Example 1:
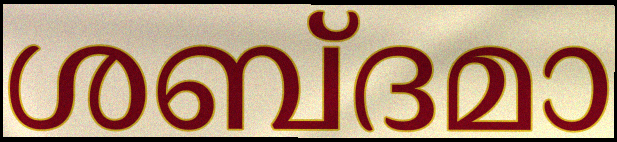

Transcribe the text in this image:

ശബ്ദമാ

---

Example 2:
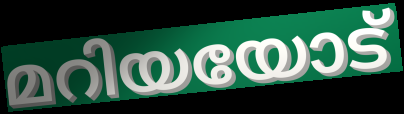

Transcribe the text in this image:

മറിയയോട്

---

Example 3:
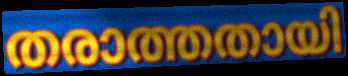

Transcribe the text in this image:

തരാത്തതായി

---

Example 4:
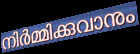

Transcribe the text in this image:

നിർമ്മിക്കുവാനും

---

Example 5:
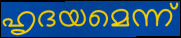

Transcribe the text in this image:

ഹൃദയമെന്ന്